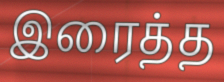
இரைத்த